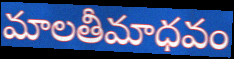
మాలతీమాధవం